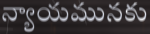
న్యాయమునకు